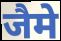
जैमे